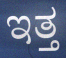
ಇತ್ತ